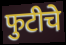
फुटीचे